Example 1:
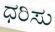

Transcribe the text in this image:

ಧರಿಸು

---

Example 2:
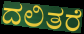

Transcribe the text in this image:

ದಲಿತರೆ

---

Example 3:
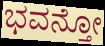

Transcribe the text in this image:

ಭವನ್ತೋ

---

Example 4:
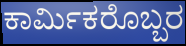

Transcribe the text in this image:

ಕಾರ್ಮಿಕರೊಬ್ಬರ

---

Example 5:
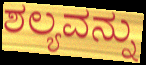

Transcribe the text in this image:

ಶಲ್ಯವನ್ನು